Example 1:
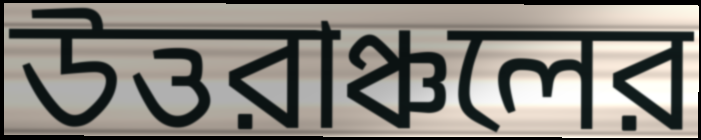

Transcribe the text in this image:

উত্তরাঞ্চলের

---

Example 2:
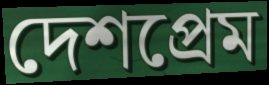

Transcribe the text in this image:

দেশপ্রেম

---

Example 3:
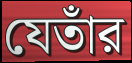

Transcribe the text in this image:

যেতাঁর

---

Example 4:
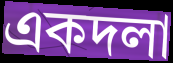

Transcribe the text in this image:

একদলা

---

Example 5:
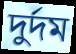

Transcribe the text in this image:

দুর্দম